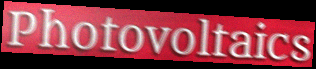
Photovoltaics